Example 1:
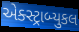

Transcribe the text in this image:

એક્સ્ટ્રાબ્યુકલ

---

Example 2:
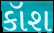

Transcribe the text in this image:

કૉશ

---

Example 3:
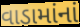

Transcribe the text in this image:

વાડામાંનાં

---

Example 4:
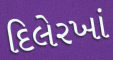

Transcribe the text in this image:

દિલેરખાં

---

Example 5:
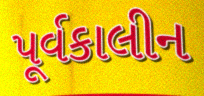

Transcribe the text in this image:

પૂર્વકાલીન